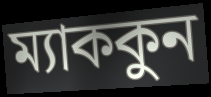
ম্যাককুন